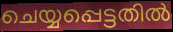
ചെയ്യപ്പെട്ടതിൽ